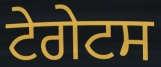
ਟੇਗੇਟਸ